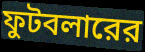
ফুটবলারের